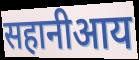
सहानीआय